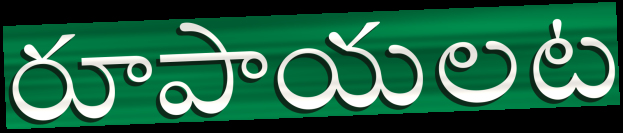
రూపాయలట